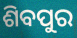
ଶିବପୁର